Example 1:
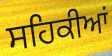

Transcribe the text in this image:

ਸਹਿਕੀਆਂ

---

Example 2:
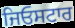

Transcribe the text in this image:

ਜਿਓਸਟਾਰ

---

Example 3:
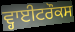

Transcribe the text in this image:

ਵ੍ਹਾਈਟਰੌਕਸ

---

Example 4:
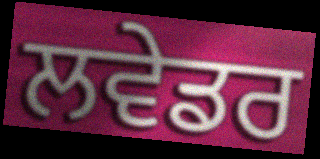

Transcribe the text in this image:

ਲਵੇਡਰ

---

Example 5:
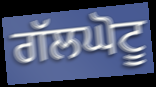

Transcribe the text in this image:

ਗੱਲਘੋਟੂ